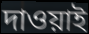
দাওয়াই